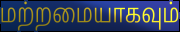
மற்றமையாகவும்